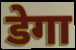
डेगा